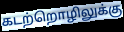
கடற்றொழிலுக்கு